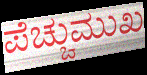
ಪೆಚ್ಚುಮುಖ